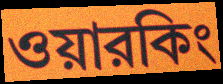
ওয়ারকিং